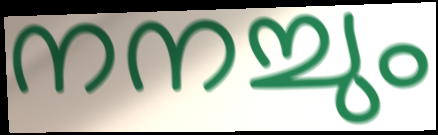
നനച്ചും